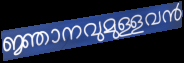
ജ്ഞാനവുമുള്ളവൻ